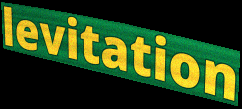
levitation